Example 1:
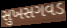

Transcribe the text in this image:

સુખસગવડ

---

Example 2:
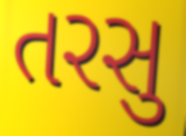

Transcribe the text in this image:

તરસુ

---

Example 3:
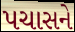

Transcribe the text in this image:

પચાસને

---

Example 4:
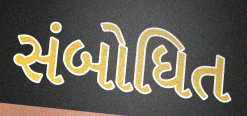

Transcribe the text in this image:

સંબોધિત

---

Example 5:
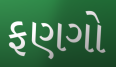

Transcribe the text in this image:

ફણગો